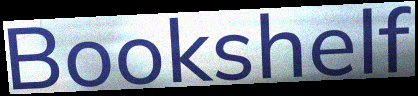
Bookshelf